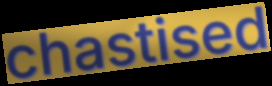
chastised